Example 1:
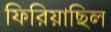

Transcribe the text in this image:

ফিরিয়াছিল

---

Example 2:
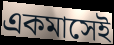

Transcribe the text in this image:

একমাসেই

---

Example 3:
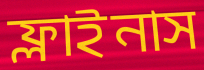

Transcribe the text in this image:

ফ্লাইনাস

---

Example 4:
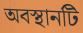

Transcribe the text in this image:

অবস্থানটি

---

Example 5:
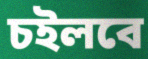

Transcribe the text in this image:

চইলবে